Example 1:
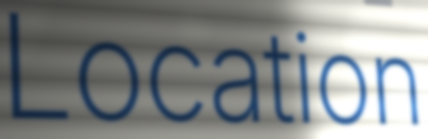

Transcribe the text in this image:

Location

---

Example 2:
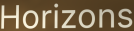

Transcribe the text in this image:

Horizons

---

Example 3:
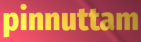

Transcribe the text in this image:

pinnuttam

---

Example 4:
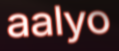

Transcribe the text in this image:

aalyo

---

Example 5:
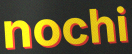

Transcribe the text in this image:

nochi